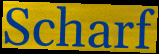
Scharf